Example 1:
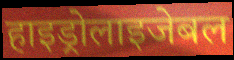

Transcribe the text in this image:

हाइड्रोलाइजेबल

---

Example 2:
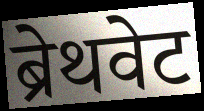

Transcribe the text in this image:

ब्रेथवेट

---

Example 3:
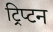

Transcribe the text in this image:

ट्रिप्टन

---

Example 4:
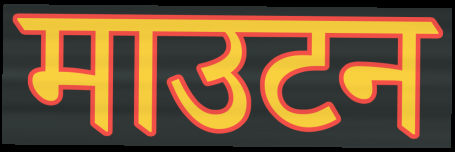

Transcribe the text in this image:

माउटन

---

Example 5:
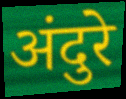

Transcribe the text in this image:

अंदुरे